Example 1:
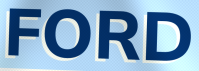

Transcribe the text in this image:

FORD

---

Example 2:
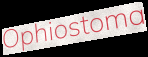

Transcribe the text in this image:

Ophiostoma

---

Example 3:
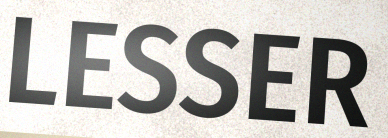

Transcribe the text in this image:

LESSER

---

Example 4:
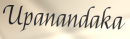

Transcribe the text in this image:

Upanandaka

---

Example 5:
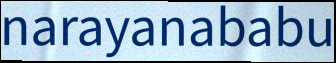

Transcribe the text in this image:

narayanababu